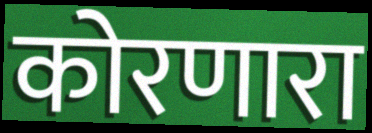
कोरणारा